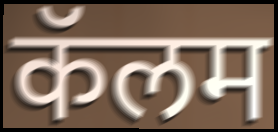
कॅलम